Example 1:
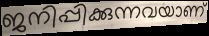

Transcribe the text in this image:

ജനിപ്പിക്കുന്നവയാണ്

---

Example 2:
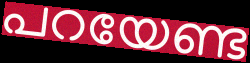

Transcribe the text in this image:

പറയേണ്ട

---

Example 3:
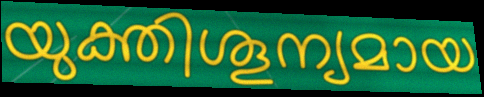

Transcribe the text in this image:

യുക്തിശൂന്യമായ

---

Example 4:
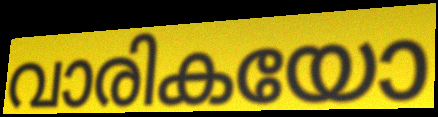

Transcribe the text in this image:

വാരികയോ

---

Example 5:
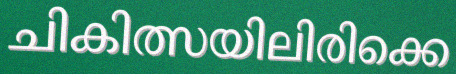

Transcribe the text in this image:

ചികിത്സയിലിരിക്കെ